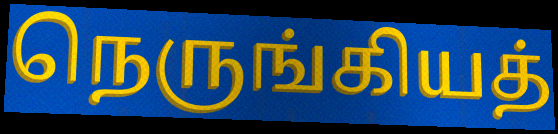
நெருங்கியத்